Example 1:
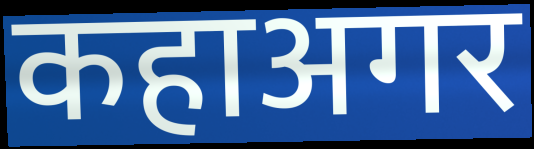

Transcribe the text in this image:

कहाअगर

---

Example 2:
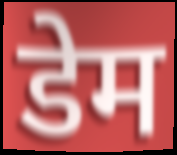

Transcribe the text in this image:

डेम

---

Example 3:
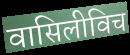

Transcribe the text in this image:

वासिलीविच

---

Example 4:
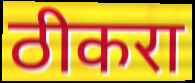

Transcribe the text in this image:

ठीकरा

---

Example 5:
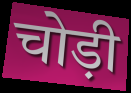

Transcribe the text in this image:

चोड़ी